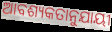
ଆବଶ୍ୟକତାନୁଯାୟୀ